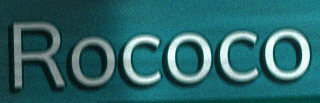
Rococo